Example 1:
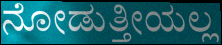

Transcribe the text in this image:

ನೋಡುತ್ತೀಯಲ್ಲ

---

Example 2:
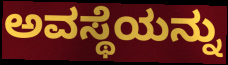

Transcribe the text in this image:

ಅವಸ್ಥೆಯನ್ನು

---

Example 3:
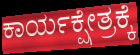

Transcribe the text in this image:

ಕಾರ್ಯಕ್ಷೇತ್ರಕ್ಕೆ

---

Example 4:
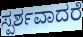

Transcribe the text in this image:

ಸ್ಪರ್ಶವಾದರೆ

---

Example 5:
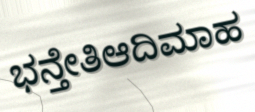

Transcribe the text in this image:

ಭನ್ತೇತಿಆದಿಮಾಹ